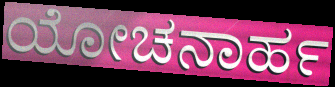
ಯೋಚನಾರ್ಹ